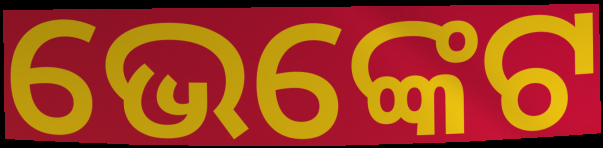
ଭେଙ୍କେଟ